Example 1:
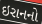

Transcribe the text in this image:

ઇરાનનો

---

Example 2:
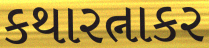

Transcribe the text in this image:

કથારત્નાકર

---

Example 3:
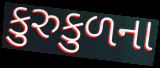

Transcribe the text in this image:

કુરુકુળના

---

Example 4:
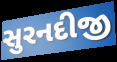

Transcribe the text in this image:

સુરનદીજી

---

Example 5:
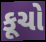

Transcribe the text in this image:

કૂચો